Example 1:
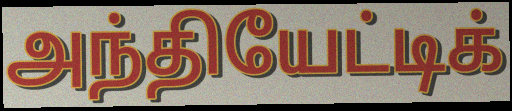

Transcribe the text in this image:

அந்தியேட்டிக்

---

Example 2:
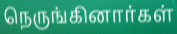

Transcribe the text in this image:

நெருங்கினார்கள்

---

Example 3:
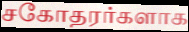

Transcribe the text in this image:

சகோதரர்களாக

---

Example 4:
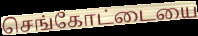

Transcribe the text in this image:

செங்கோட்டையை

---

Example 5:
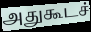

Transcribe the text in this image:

அதுகூடச்